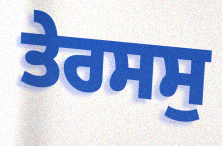
ਤੇਰਸਸੁ